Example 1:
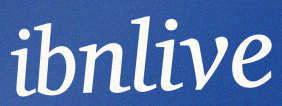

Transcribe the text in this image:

ibnlive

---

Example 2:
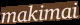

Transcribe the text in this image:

makimai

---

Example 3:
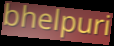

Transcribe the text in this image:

bhelpuri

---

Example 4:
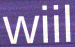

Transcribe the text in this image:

wiil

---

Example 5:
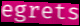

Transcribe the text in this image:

egrets